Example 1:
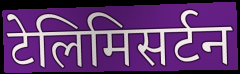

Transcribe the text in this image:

टेलिमिसर्टन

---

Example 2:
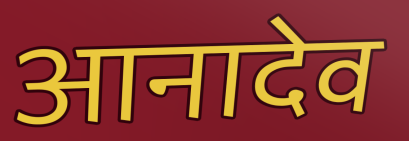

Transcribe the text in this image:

आनादेव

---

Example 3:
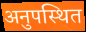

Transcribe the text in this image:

अनुपस्थित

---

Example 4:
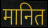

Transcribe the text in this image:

मानित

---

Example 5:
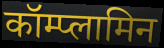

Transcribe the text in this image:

कॉम्प्लामिन